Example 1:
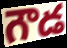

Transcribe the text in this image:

గౌడ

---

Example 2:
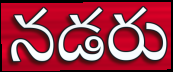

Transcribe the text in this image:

నడరు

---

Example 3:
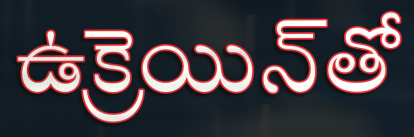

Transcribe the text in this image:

ఉక్రెయిన్‌తో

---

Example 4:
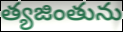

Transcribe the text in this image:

త్యజింతును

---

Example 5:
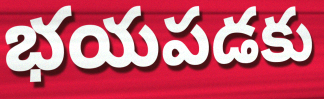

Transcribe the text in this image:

భయపడకు